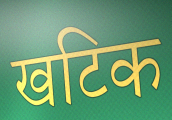
खटिक